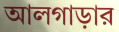
আলগাড়ার